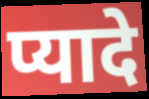
प्यादे